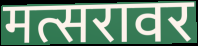
मत्सरावर